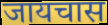
जायचास